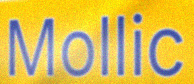
Mollic